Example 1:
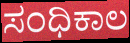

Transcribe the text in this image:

ಸಂಧಿಕಾಲ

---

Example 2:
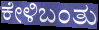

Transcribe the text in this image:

ಕೇಳಿಬಂತು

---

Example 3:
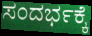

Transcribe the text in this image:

ಸಂದರ್ಭಕ್ಕೆ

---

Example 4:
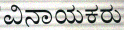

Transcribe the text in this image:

ವಿನಾಯಕರು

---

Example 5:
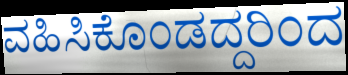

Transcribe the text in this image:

ವಹಿಸಿಕೊಂಡದ್ದರಿಂದ